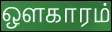
ஔகாரம்